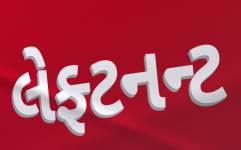
લેફ્ટનન્ટ